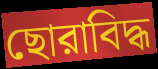
ছোরাবিদ্ধ